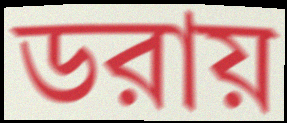
ডরায়